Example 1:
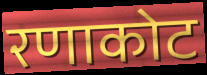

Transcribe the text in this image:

रणाकोट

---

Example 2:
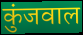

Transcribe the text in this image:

कुंजवाल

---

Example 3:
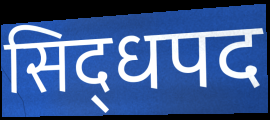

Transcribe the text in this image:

सिद्धपद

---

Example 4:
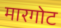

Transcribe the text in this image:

मारगोट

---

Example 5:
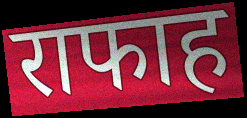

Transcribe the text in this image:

राफाह